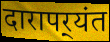
दारापर्यंत